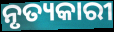
ନୃତ୍ୟକାରୀ